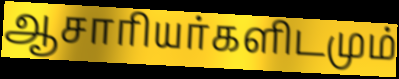
ஆசாரியர்களிடமும்